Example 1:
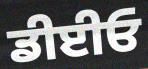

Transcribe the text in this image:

ਡੀਈਓ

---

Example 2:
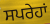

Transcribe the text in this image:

ਸਪਰੇਹਾਂ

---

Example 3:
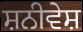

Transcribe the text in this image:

ਸ਼ਨੀਵੇਸ਼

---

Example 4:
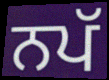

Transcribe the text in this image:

ਨਪੱ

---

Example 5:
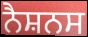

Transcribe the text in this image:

ਨੈਸ਼ਨਸ